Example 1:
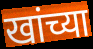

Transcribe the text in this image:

खांच्या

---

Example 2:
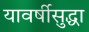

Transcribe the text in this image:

यावर्षीसुद्धा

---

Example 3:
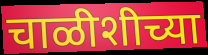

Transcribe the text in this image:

चाळीशीच्या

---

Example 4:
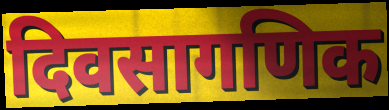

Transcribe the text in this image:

दिवसागणिक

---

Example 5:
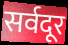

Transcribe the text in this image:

सर्वदूर